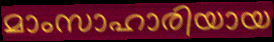
മാംസാഹാരിയായ